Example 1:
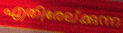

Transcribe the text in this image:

എതിരേല്ക്കുന്ന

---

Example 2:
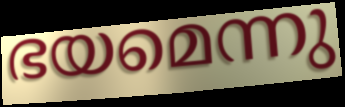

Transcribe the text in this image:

ഭയമെന്നു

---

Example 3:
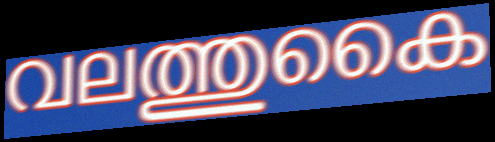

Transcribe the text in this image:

വലത്തുകൈ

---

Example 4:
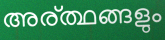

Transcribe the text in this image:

അര്ത്ഥങ്ങളും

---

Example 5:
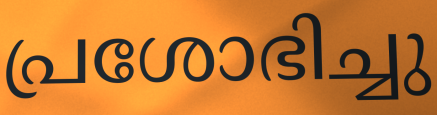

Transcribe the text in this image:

പ്രശോഭിച്ചു